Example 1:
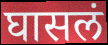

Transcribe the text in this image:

घासलं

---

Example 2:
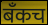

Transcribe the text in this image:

बँकच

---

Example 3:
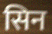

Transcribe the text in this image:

सिन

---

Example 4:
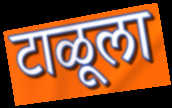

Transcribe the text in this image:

टाळूला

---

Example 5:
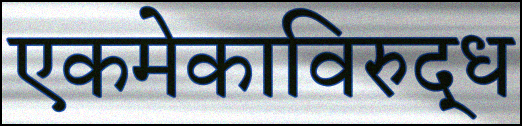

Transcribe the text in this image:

एकमेकाविरुद्ध